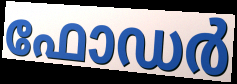
ഫോഡർ